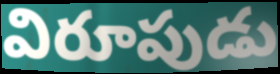
విరూపుడు